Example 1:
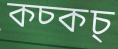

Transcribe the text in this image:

কচ্কচ্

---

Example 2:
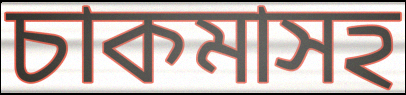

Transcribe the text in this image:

চাকমাসহ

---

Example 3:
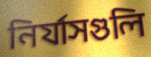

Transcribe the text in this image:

নির্যাসগুলি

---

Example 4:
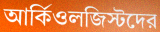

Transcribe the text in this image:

আর্কিওলজিস্টদের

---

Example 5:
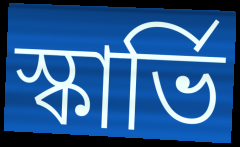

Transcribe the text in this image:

স্কার্ভি